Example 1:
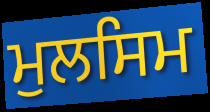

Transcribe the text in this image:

ਮੁਲਸਿਮ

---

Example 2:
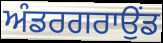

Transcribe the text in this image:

ਅੰਡਰਗਰਾਉਂਡ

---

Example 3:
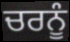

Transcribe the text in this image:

ਚਰਨੂੰ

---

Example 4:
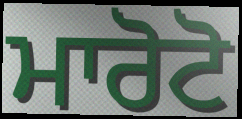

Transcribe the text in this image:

ਮਾਰੋਟੋ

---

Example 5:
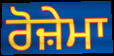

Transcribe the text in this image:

ਰੋਜ਼ੇਮਾ